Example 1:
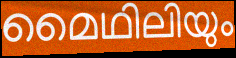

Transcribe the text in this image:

മൈഥിലിയും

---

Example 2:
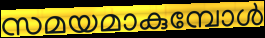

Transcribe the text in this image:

സമയമാകുമ്പോൾ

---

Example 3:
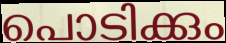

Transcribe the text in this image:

പൊടിക്കും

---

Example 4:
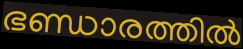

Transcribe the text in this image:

ഭണ്ഡാരത്തിൽ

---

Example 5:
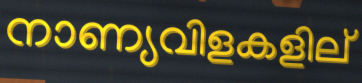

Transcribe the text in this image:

നാണ്യവിളകളില്